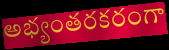
అభ్యంతరకరంగా